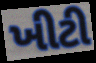
ખીટી